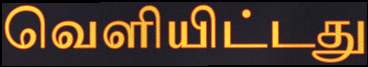
வெளியிட்டது